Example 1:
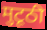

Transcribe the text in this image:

मुटूठी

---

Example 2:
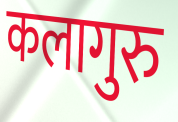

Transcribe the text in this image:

कलागुरु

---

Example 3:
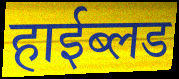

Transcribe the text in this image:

हाईब्लड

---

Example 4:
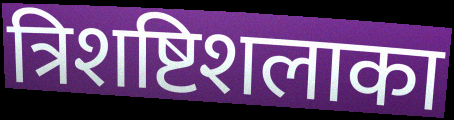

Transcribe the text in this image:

त्रिशष्टिशलाका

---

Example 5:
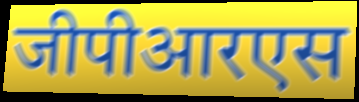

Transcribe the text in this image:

जीपीआरएस